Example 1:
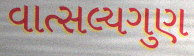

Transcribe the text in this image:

વાત્સલ્યગુણ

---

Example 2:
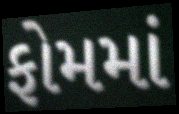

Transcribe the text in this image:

ફોમમાં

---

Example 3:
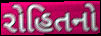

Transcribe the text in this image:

રોહિતનો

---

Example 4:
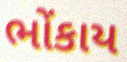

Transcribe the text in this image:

ભોંકાય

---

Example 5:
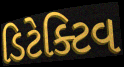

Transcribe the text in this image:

ડિટેક્ટિવ